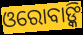
ଓରୋବାଙ୍କି